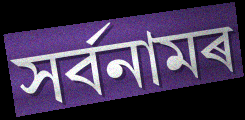
সৰ্বনামৰ